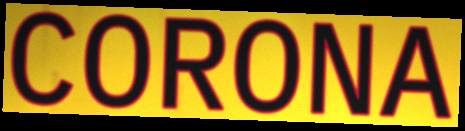
CORONA